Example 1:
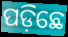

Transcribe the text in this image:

ପଡ଼ିଛେ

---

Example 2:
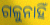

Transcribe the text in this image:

ଗଳୁନାହିଁ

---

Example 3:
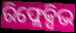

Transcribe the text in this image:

ରିଫ୍ଲେକ୍ସିଭ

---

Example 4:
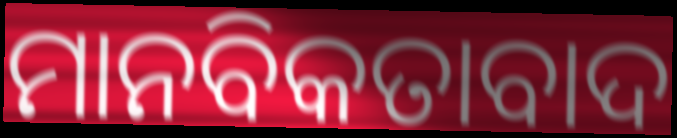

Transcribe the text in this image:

ମାନବିକତାବାଦ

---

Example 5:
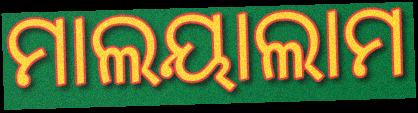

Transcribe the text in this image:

ମାଲୟାଲାମ